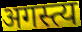
अगस्त्य